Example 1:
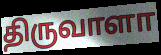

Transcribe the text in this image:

திருவாளா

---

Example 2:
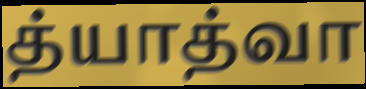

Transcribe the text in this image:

த்யாத்வா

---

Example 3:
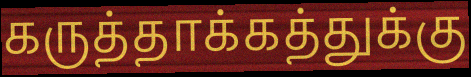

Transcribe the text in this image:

கருத்தாக்கத்துக்கு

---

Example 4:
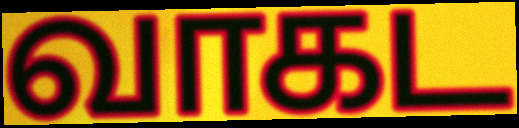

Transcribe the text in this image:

வாகட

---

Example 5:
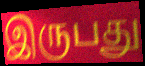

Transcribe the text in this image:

இருபது